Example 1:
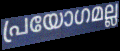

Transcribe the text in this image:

പ്രയോഗമല്ല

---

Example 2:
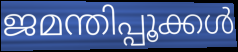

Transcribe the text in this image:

ജമന്തിപ്പൂക്കൾ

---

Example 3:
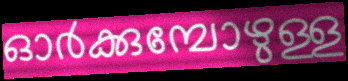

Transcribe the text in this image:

ഓർക്കുമ്പോഴുള്ള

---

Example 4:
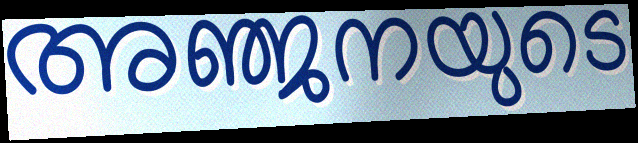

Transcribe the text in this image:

അഞ്ജനയുടെ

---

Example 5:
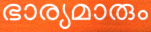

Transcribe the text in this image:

ഭാര്യമാരും